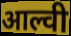
आल्वी